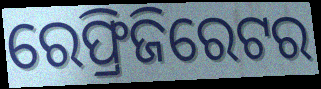
ରେଫ୍ରିଜିରେଟର